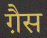
ग़ैस